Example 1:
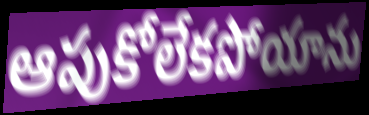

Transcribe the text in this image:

ఆపుకోలేకపోయాను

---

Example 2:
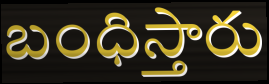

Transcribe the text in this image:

బంధిస్తారు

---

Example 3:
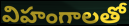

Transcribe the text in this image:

విహంగాలతో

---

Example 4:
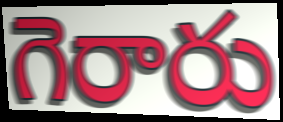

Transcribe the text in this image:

గెరారు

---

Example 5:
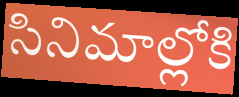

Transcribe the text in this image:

సినిమాల్లోకి